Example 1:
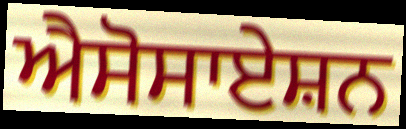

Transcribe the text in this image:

ਐਸੋਸਾਏਸ਼ਨ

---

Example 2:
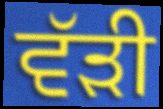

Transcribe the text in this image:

ਵੱੜੀ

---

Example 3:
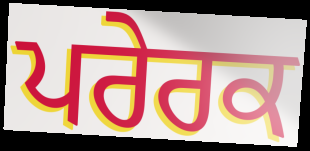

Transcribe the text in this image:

ਪਰੇਰਕ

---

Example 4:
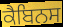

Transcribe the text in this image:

ਕੈਬਿਨਸ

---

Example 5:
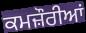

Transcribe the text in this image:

ਕਮਜ਼ੌਰੀਆਂ